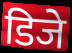
डिजे